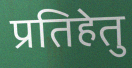
प्रतिहेतु